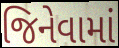
જિનેવામાં